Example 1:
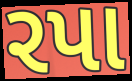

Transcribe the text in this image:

રપા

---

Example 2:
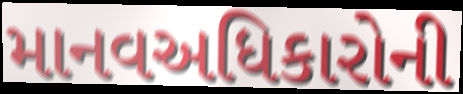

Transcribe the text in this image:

માનવઅધિકારોની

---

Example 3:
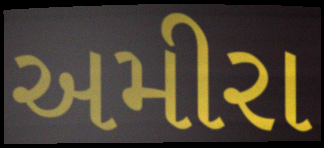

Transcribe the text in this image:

અમીરા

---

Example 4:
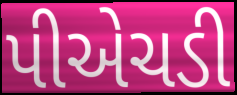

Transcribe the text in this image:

પીએચડી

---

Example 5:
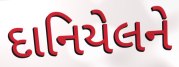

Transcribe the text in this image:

દાનિયેલને